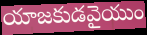
యాజకుడవైయుం